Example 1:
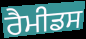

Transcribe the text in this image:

ਰੈਮੀਡਸ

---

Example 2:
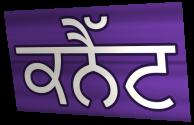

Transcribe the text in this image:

ਕਨੈੱਟ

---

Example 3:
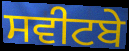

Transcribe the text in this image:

ਸਵੀਟਬੇ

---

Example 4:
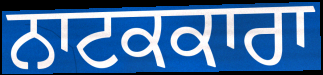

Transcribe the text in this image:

ਨਾਟਕਕਾਰਾ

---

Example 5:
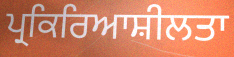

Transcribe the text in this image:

ਪ੍ਰਕਿਰਿਆਸ਼ੀਲਤਾ